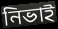
নিভাই